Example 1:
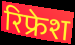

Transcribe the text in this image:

रिफ्रेश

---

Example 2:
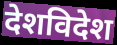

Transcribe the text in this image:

देशविदेश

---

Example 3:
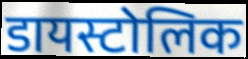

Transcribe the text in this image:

डायस्टोलिक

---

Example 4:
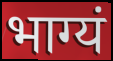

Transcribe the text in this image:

भाग्यं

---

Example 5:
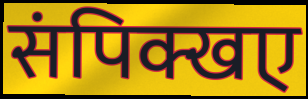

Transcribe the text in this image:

संपिक्खए